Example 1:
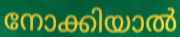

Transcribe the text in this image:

നോക്കിയാൽ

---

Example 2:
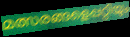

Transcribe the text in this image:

മത്സരങ്ങളെപ്പറ്റിയും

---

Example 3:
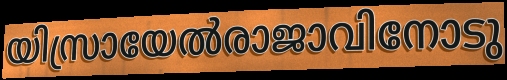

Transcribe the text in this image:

യിസ്രായേൽരാജാവിനോടു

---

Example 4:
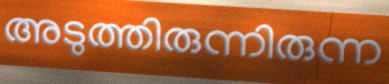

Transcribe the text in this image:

അടുത്തിരുന്നിരുന്ന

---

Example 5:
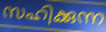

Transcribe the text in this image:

സഹിക്കുന്ന